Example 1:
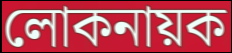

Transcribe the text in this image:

লোকনায়ক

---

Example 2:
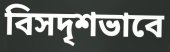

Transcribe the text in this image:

বিসদৃশভাবে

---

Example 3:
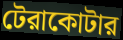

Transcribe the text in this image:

টেরাকোটার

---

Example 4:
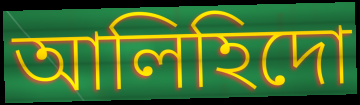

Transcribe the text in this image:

আলিহিদো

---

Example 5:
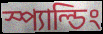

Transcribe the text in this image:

স্প্যাল্ডিং